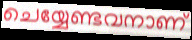
ചെയ്യേണ്ടവനാണ്